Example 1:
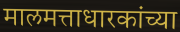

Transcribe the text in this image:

मालमत्ताधारकांच्या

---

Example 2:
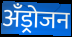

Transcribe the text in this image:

अँड्रोजन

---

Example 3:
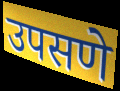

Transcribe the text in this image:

उपसणे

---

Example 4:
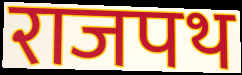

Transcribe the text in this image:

राजपथ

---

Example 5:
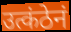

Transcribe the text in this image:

उत्कंठेनं